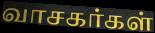
வாசகர்கள்